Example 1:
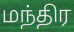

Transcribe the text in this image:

மந்திர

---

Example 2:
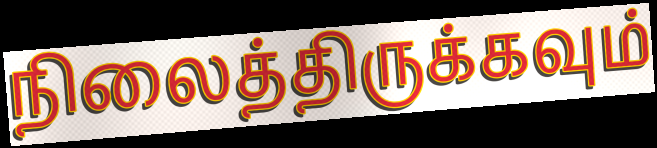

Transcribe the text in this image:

நிலைத்திருக்கவும்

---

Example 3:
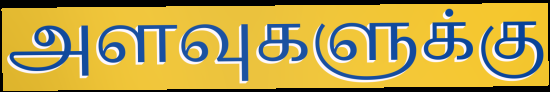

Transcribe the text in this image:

அளவுகளுக்கு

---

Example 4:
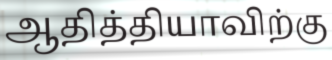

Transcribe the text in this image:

ஆதித்தியாவிற்கு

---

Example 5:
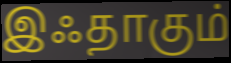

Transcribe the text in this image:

இஃதாகும்